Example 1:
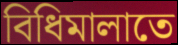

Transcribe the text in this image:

বিধিমালাতে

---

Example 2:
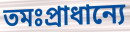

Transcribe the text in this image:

তমঃপ্রাধান্যে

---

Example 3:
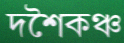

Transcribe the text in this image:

দশৈকঞ্চ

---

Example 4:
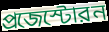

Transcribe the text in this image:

প্রজেস্টোরন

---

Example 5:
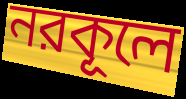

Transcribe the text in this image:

নরকূলে